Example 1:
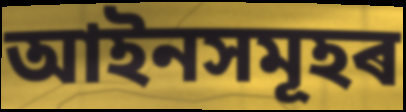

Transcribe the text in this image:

আইনসমূহৰ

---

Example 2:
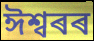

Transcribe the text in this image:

ঈশ্বৰৰ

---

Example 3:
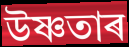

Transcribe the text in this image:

উষ্ণতাৰ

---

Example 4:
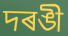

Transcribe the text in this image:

দৰঙী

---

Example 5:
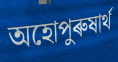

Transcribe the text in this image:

অহোপুৰুষাৰ্থ